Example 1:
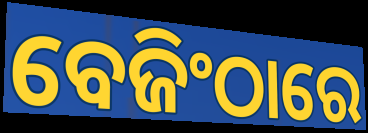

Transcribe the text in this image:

ବେଜିଂଠାରେ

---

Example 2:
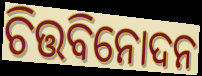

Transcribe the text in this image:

ଚିତ୍ତବିନୋଦନ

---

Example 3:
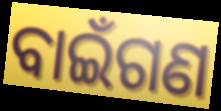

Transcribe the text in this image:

ବାଇଁଗଣ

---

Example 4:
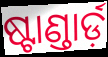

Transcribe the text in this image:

ଷ୍ଟାଣ୍ଡାର୍ଡ଼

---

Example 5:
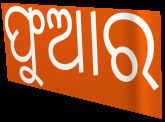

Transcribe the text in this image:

ଫୁଆର